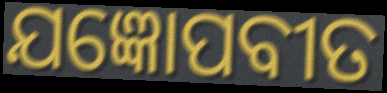
ଯଜ୍ଞୋପବୀତ